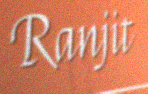
Ranjit